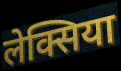
लेक्सिया